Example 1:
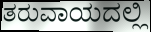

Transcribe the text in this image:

ತರುವಾಯದಲ್ಲಿ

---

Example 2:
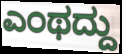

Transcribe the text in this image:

ಎಂಥದ್ದು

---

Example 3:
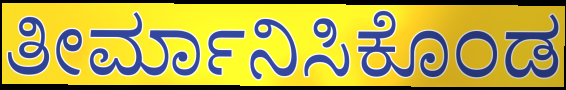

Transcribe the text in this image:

ತೀರ್ಮಾನಿಸಿಕೊಂಡ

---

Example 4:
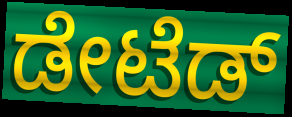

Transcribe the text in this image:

ಡೇಟೆಡ್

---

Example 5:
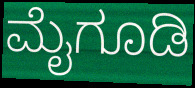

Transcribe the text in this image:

ಮೈಗೂಡಿ